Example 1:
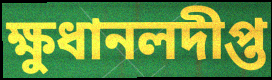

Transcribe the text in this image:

ক্ষুধানলদীপ্ত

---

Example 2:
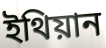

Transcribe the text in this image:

ইথিয়ান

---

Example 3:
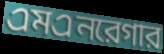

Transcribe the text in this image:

এমএনরেগার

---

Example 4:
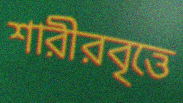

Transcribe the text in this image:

শারীরবৃত্তে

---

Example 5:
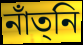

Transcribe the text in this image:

নাঁত্‌নি